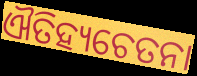
ଐତିହ୍ୟଚେତନା